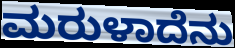
ಮರುಳಾದೆನು